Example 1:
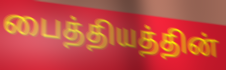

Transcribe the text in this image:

பைத்தியத்தின்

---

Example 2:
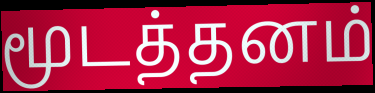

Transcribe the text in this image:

மூடத்தனம்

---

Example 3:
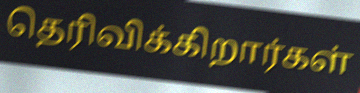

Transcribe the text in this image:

தெரிவிக்கிறார்கள்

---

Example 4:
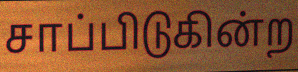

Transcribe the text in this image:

சாப்பிடுகின்ற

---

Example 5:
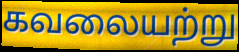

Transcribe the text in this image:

கவலையற்று